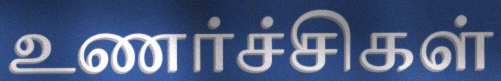
உணர்ச்சிகள்